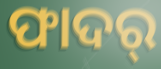
ଫାଦର୍